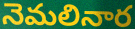
నెమలినార